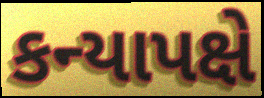
કન્યાપક્ષે